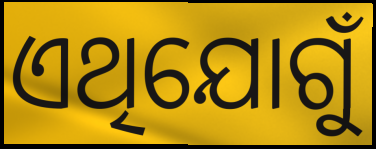
ଏଥିଯୋଗୁଁ